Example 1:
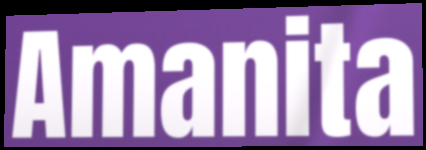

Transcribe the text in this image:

Amanita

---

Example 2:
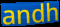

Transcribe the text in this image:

andh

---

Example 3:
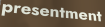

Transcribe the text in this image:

presentment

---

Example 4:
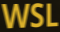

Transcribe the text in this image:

WSL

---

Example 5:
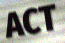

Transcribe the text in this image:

ACT